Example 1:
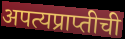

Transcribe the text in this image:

अपत्यप्राप्तीची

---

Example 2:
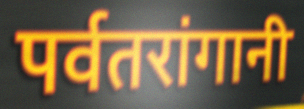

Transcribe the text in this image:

पर्वतरांगानी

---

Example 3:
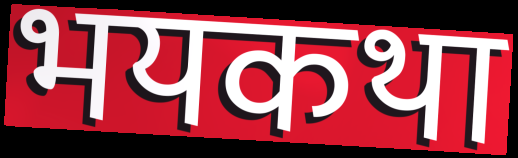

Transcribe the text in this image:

भयकथा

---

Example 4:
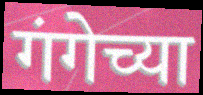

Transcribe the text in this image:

गंगेच्या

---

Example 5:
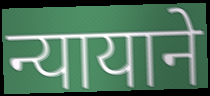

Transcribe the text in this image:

न्यायाने